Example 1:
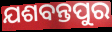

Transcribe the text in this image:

ଯଶବନ୍ତପୁର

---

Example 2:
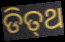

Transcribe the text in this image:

ଡିତ୍‍ଥ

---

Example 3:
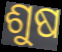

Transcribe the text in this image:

ଶୁଷ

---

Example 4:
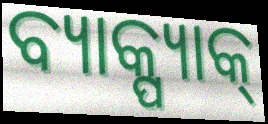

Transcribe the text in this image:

ବ୍ୟାକ୍ପ୍ୟାକ୍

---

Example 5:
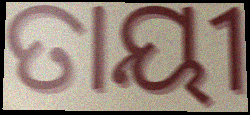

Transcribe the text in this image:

ତାୟୀ